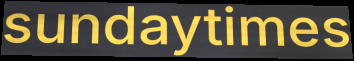
sundaytimes